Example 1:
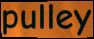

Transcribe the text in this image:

pulley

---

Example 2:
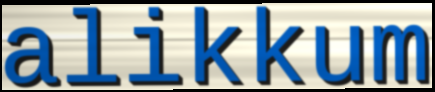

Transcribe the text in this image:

alikkum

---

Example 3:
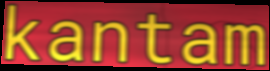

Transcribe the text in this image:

kantam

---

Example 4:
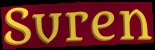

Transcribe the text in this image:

Suren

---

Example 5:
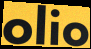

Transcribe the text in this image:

olio